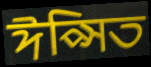
ঈপ্সিত